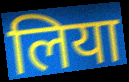
लिया